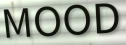
MOOD